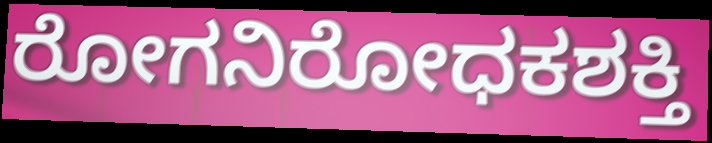
ರೋಗನಿರೋಧಕಶಕ್ತಿ